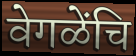
वेगळेंचि